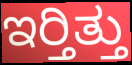
ಇರ್‍ತಿತ್ತು